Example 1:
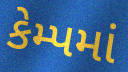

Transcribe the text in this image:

કેમ્પમાં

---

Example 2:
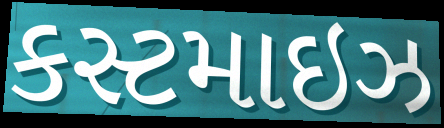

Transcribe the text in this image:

કસ્ટમાઇઝ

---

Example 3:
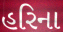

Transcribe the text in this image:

હરિના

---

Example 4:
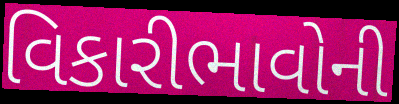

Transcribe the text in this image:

વિકારીભાવોની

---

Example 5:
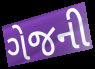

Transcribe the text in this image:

ગેજની